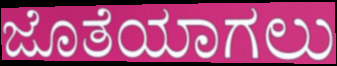
ಜೊತೆಯಾಗಲು